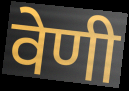
वेणी